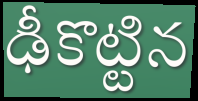
ఢీకొట్టిన